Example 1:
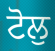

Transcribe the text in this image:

ਟੋਲੁ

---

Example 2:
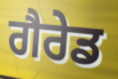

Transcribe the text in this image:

ਗੈਰੇਡ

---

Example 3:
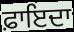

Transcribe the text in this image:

ਫ਼ਾਇਦਾ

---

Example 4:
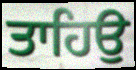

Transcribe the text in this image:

ਤਾਹਿਉ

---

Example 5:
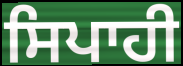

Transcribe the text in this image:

ਸਿਪਾਹੀ